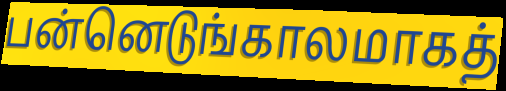
பன்னெடுங்காலமாகத்